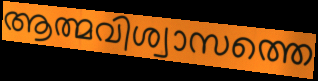
ആത്മവിശ്വാസത്തെ